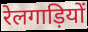
रेलगाड़ियों